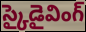
స్కైడైవింగ్